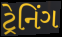
ટ્રેનિંગ